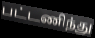
பட்டணிந்து